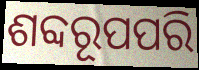
ଶବ୍ଦରୂପପରି